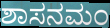
ಶಾಸನಮಂ